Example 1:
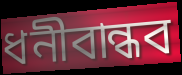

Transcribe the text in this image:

ধনীবান্ধব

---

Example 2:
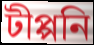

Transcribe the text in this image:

টীপ্পনি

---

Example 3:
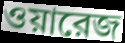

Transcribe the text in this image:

ওয়ারেজ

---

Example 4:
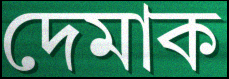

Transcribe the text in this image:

দেমাক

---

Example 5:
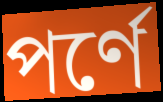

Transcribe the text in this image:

পর্ণে